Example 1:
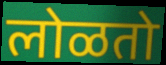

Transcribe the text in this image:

लोळतो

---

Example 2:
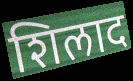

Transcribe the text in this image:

शिलाद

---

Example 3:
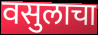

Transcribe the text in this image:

वसुलाचा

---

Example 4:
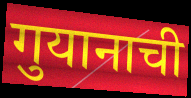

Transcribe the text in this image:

गुयानाची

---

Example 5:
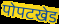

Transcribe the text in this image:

पोपटखेड